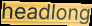
headlong